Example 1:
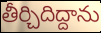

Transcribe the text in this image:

తీర్చిదిద్దాను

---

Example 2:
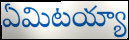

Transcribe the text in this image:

ఏమిటయ్యా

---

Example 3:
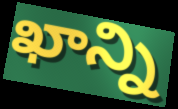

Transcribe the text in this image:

ఖాన్ని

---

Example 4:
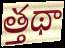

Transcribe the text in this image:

త్తథా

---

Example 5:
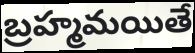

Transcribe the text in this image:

బ్రహ్మమయితే